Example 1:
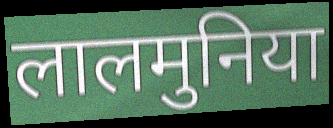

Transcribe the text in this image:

लालमुनिया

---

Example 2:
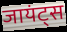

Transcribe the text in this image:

जायंट्स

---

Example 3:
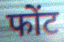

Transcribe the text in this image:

फोंट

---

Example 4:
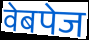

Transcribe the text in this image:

वेबपेज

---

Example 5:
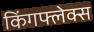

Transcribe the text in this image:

किंगफ्लेक्स